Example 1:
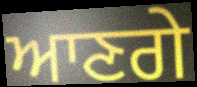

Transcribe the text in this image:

ਆਣਗੇ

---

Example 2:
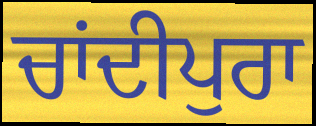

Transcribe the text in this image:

ਚਾਂਦੀਪੁਰਾ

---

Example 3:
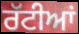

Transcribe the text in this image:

ਰੱਟੀਆਂ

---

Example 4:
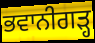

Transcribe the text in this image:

ਭਵਾਨੀਗੜ੍ਹ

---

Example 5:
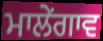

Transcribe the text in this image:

ਮਾਲੇਂਗਾਵ